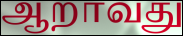
ஆறாவது